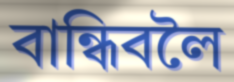
বান্ধিবলৈ